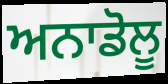
ਅਨਾਡੋਲੂ